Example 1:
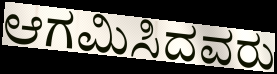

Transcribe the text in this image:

ಆಗಮಿಸಿದವರು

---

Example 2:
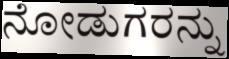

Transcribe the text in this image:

ನೋಡುಗರನ್ನು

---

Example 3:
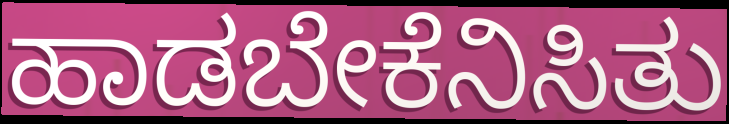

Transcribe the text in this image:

ಹಾಡಬೇಕೆನಿಸಿತು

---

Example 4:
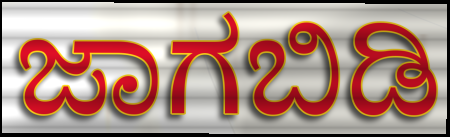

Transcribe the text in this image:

ಜಾಗಬಿಡಿ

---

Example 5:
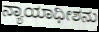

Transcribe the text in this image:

ನ್ಯಾಯಾಧೀಶನು